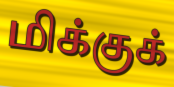
மிக்குக்